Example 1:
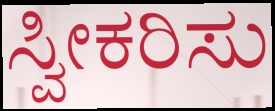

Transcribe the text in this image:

ಸ್ವೀಕರಿಸು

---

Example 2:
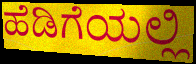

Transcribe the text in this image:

ಹೆಡಿಗೆಯಲ್ಲಿ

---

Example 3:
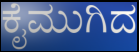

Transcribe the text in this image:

ಕೈಮುಗಿದ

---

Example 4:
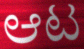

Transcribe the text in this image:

ಆಟ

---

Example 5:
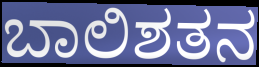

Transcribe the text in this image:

ಬಾಲಿಶತನ